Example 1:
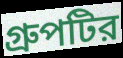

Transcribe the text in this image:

গ্রুপটির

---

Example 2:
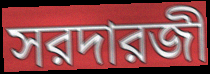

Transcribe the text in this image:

সরদারজী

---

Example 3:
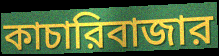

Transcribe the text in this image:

কাচারিবাজার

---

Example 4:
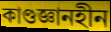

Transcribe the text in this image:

কাণ্ডজ্ঞানহীন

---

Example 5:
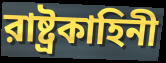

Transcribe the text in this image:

রাষ্ট্রকাহিনী